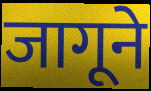
जागूने